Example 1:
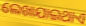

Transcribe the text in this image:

ଲେଖାଯାଇଥାଏ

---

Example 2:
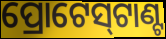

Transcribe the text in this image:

ପ୍ରୋଟେସ୍‌ଟାଣ୍ଟ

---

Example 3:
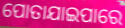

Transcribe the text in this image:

ପୋତାଯାଇପାରେ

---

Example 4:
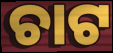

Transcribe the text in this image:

ଚାଟ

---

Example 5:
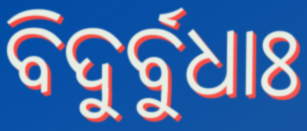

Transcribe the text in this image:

ବିଦୁର୍ବୁଧାଃ